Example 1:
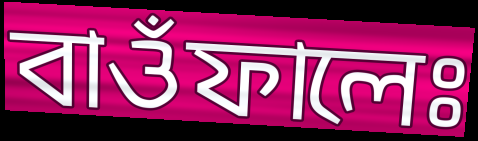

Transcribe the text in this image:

বাওঁফালেঃ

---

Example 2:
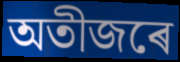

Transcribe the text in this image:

অতীজৰে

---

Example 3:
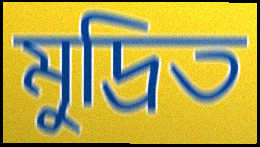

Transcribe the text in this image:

মুদ্ৰিত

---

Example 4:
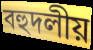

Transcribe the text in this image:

বহুদলীয়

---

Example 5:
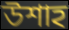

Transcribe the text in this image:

উশাহ